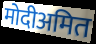
मोदीअमित